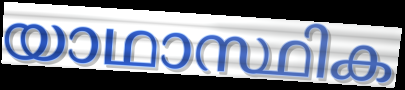
യാഥാസ്ഥിക